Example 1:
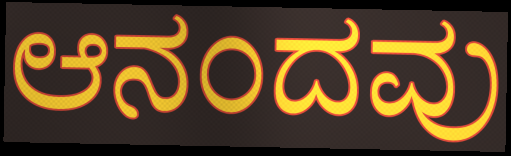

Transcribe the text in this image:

ಆನಂದವು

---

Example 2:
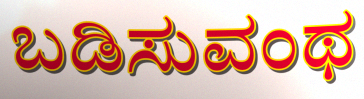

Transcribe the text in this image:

ಬಡಿಸುವಂಥ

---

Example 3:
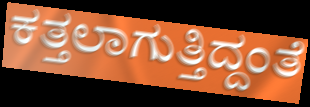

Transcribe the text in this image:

ಕತ್ತಲಾಗುತ್ತಿದ್ದಂತೆ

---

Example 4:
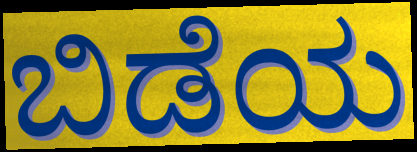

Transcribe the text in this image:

ಬಿಡೆಯ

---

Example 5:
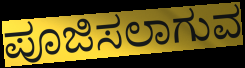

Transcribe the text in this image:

ಪೂಜಿಸಲಾಗುವ